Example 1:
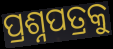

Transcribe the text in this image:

ପ୍ରଶ୍ନପତ୍ରକୁ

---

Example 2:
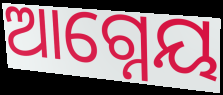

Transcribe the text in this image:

ଆଗ୍ନେୟ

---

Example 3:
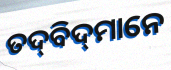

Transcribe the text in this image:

ତଦ୍‌ବିଦ୍‌ମାନେ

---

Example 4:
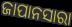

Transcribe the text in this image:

ଜାପାନସାରା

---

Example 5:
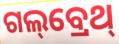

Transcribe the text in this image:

ଗଲ୍‌ବ୍ରେଥ୍